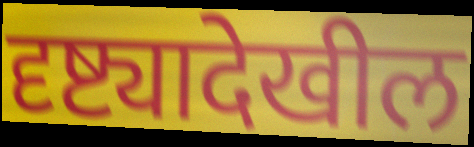
दृष्ट्यादेखील